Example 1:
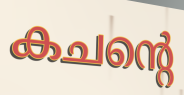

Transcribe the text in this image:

കചന്റെ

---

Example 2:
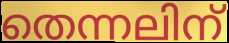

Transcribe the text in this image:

തെന്നലിന്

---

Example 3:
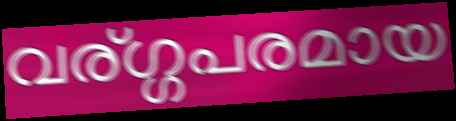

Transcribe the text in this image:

വര്ഗ്ഗപരമായ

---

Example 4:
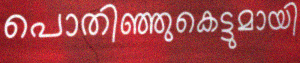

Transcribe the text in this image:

പൊതിഞ്ഞുകെട്ടുമായി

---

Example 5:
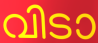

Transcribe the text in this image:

വിടാ